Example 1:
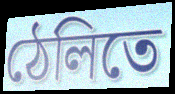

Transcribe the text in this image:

ঠেলিতে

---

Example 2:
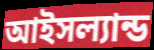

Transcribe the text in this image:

আইসল্যান্ড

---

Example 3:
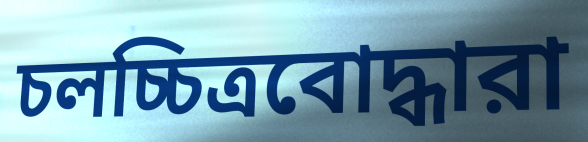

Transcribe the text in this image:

চলচ্চিত্রবোদ্ধারা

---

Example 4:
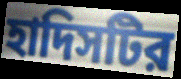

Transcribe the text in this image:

হাদিসটির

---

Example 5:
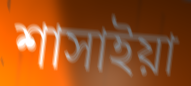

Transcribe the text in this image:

শাসাইয়া